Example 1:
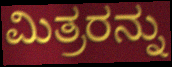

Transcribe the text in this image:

ಮಿತ್ರರನ್ನು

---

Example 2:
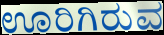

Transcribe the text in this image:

ಊರಿಗಿರುವ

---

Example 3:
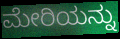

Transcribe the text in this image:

ಮೇರಿಯನ್ನು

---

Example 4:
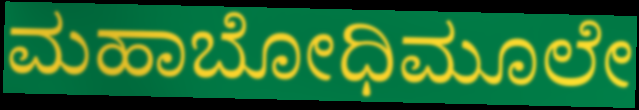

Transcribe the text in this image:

ಮಹಾಬೋಧಿಮೂಲೇ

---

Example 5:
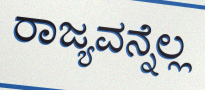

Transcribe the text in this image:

ರಾಜ್ಯವನ್ನೆಲ್ಲ